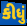
કીધું